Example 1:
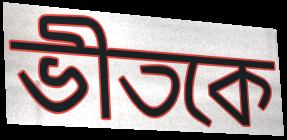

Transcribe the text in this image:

ভীতকে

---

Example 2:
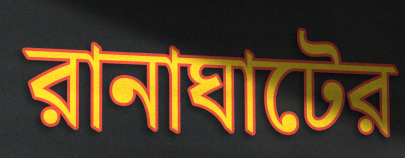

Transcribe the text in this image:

রানাঘাটের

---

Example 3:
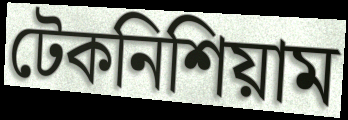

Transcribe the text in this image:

টেকনিশিয়াম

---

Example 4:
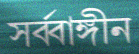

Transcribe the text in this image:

সর্ব্বাঙ্গীন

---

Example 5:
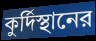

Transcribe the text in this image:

কুর্দিস্থানের